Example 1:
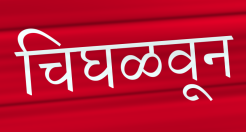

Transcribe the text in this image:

चिघळवून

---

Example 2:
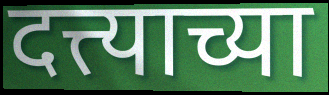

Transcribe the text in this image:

दत्त्याच्या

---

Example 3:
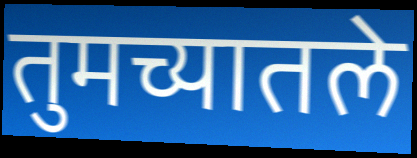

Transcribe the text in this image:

तुमच्यातले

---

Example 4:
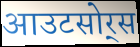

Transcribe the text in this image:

आउटसोर्स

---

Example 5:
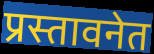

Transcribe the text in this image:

प्रस्तावनेत